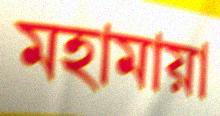
মহামায়া